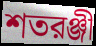
শতরঞ্জী